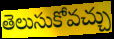
తెలుసుకోవచ్చు